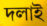
দলাই